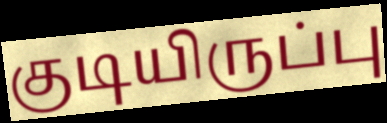
குடியிருப்பு